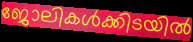
ജോലികൾക്കിടയിൽ